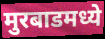
मुरबाडमध्ये